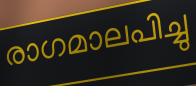
രാഗമാലപിച്ചു